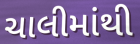
ચાલીમાંથી